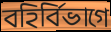
বহির্বিভাগে